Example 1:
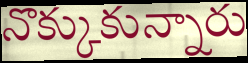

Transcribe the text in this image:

నొక్కుకున్నారు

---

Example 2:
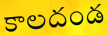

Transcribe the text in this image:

కాలదండ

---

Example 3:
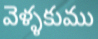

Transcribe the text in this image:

వెళ్ళకుము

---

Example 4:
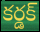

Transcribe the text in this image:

కర్డక్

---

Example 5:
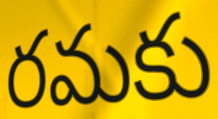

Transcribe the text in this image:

రమకు